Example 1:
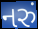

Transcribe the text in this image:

નરું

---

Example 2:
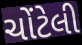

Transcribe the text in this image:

ચોંટેલી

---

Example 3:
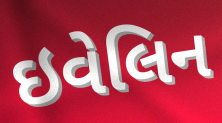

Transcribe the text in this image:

ઇવેલિન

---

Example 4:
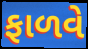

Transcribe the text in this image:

ફાળવે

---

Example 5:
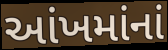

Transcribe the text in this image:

આંખમાંનાં